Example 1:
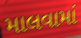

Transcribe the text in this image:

માલવામાં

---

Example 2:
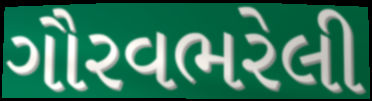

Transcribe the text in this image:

ગૌરવભરેલી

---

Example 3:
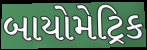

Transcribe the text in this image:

બાયોમેટ્રિક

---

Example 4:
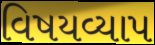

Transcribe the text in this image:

વિષયવ્યાપ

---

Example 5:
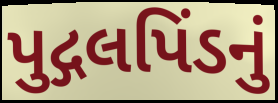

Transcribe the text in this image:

પુદ્ગલપિંડનું